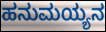
ಹನುಮಯ್ಯನ